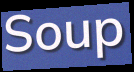
Soup